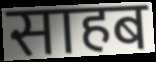
साहब